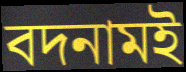
বদনামই